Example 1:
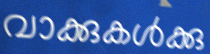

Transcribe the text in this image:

വാക്കുകൾക്കു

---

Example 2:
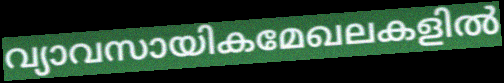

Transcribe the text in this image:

വ്യാവസായികമേഖലകളിൽ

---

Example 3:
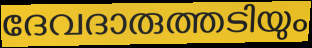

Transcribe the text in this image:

ദേവദാരുത്തടിയും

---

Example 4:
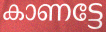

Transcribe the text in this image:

കാണട്ടേ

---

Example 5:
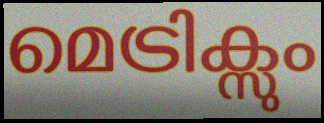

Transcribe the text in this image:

മെട്രിക്സും